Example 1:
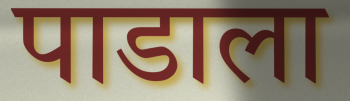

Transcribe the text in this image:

पाडाला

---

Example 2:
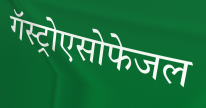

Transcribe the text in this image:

गॅस्ट्रोएसोफेजल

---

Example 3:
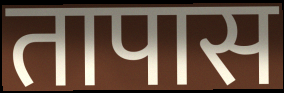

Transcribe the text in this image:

तापास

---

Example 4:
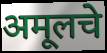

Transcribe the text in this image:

अमूलचे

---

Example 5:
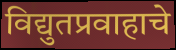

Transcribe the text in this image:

विद्युतप्रवाहाचे